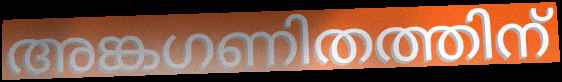
അങ്കഗണിതത്തിന്